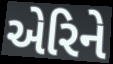
એરિને